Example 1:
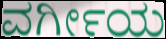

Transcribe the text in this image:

ವರ್ಗೀಯ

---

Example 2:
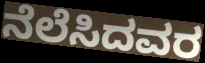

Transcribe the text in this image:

ನೆಲೆಸಿದವರ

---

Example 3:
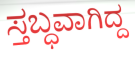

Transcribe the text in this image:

ಸ್ತಬ್ಧವಾಗಿದ್ದ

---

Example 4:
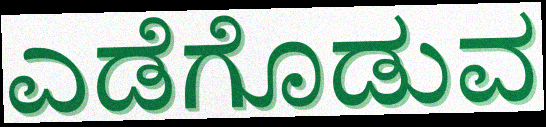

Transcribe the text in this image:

ಎಡೆಗೊಡುವ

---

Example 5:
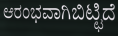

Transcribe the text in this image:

ಆರಂಭವಾಗಿಬಿಟ್ಟಿದೆ